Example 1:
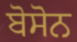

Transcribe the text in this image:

ਬੋਸੋਨ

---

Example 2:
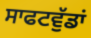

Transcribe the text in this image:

ਸਾਫਟਵੁੱਡਾਂ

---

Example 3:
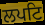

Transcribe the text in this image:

ਲਪਟਿ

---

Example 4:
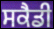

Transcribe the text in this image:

ਸਕੈਡੀ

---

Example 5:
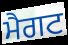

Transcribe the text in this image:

ਮੈਗਟ